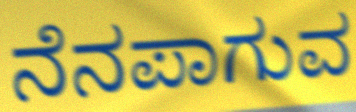
ನೆನಪಾಗುವ